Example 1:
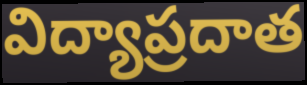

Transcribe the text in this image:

విద్యాప్రదాత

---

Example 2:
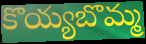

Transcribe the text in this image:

కొయ్యబొమ్మ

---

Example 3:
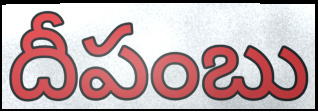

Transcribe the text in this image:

దీపంబు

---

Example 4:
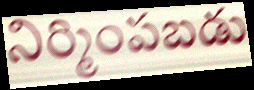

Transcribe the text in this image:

నిర్మింపబడు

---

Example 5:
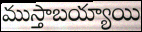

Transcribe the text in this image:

ముస్తాబయ్యాయి